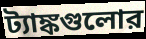
ট্যাঙ্কগুলোর